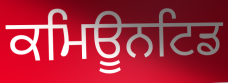
ਕਮਿਊਨਟਿਡ